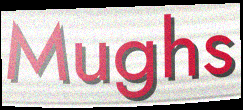
Mughs